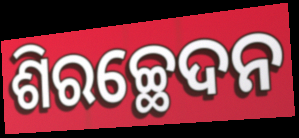
ଶିରଚ୍ଛେଦନ